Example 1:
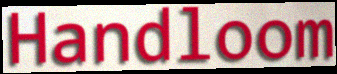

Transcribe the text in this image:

Handloom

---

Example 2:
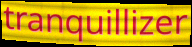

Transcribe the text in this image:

tranquillizer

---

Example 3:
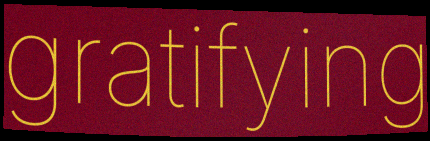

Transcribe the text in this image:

gratifying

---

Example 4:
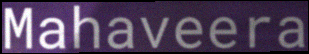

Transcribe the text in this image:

Mahaveera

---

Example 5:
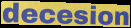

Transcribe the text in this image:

decesion